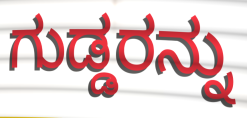
ಗುಡ್ಡರನ್ನು